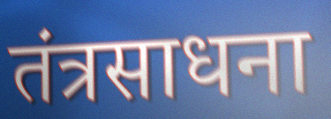
तंत्रसाधना